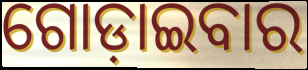
ଗୋଡ଼ାଇବାର